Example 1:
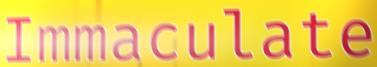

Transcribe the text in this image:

Immaculate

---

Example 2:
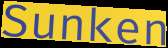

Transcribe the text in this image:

Sunken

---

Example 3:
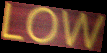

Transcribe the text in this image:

LOW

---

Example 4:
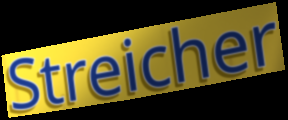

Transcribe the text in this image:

Streicher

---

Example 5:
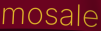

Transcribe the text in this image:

mosale